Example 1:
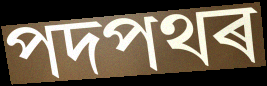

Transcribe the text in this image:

পদপথৰ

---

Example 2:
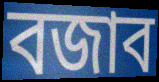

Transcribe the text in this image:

বজাব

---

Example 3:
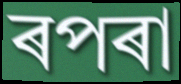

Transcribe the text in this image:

ৰপৰা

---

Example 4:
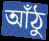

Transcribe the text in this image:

আঁঠু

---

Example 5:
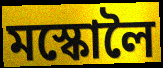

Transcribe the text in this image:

মস্কোলৈ